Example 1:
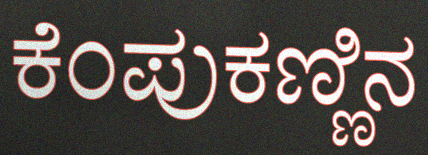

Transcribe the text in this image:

ಕೆಂಪುಕಣ್ಣಿನ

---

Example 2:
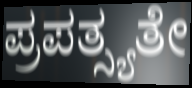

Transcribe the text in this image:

ಪ್ರಪತ್ಸ್ಯತೇ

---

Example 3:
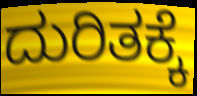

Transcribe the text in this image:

ದುರಿತಕ್ಕೆ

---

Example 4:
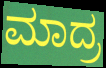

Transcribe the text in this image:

ಮಾದ್ರ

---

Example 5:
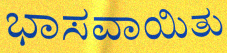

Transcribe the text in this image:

ಭಾಸವಾಯಿತು